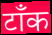
टॉंक